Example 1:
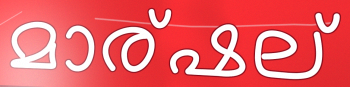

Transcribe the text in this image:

മാര്ഷല്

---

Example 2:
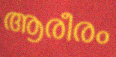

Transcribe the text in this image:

ആരീരം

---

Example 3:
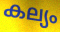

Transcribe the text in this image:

കല്യം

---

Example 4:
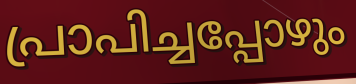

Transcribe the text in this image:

പ്രാപിച്ചപ്പോഴും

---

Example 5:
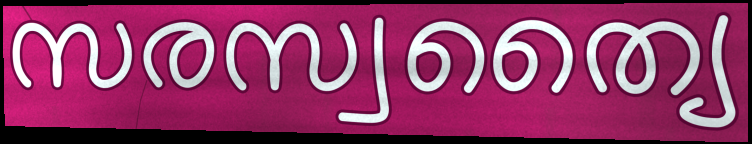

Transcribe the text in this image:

സരസ്വത്യൈ